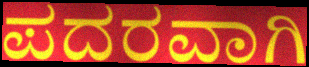
ಪದರವಾಗಿ